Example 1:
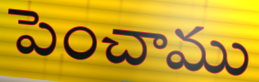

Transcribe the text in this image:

పెంచాము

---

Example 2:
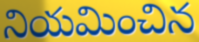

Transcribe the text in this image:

నియమించిన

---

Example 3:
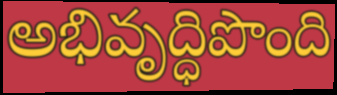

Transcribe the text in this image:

అభివృద్ధిపొంది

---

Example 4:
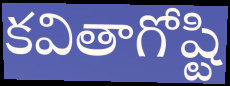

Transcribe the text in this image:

కవితాగోష్టి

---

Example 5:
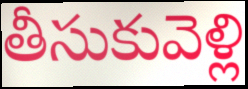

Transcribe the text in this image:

తీసుకువెళ్లి